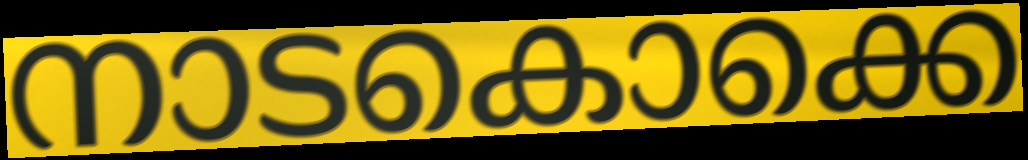
നാടകൊക്കെ